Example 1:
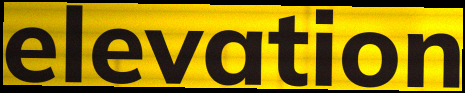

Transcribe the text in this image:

elevation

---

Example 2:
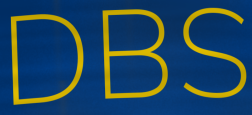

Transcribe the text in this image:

DBS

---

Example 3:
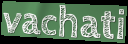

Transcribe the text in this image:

vachati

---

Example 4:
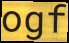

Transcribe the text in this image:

ogf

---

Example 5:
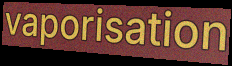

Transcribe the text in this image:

vaporisation